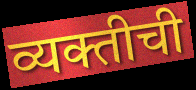
व्यक्तीची